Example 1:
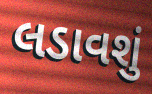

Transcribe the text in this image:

લડાવશું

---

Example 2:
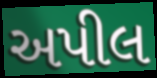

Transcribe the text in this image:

અપીલ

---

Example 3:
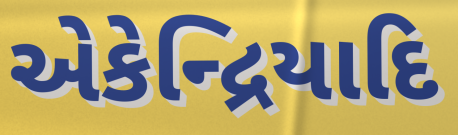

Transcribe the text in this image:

એકેન્દ્રિયાદિ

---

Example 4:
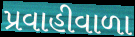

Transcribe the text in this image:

પ્રવાહીવાળા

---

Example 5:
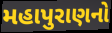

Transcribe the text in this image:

મહાપુરાણનો